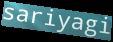
sariyagi